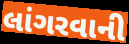
લાંગરવાની